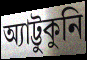
অ্যাট্টুকুনি